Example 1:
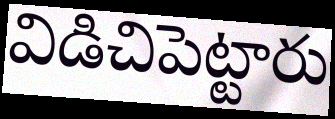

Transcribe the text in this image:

విడిచిపెట్టారు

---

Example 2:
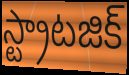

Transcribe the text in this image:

స్ట్రాటజిక్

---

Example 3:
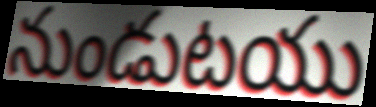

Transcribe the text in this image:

నుండుటయు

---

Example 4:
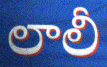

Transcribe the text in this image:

లాలీ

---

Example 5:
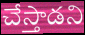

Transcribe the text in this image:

చేస్తాడని